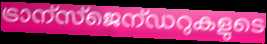
ട്രാന്സ്ജെന്ഡറുകളുടെ